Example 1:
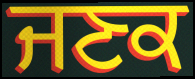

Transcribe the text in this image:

ਜਣਕ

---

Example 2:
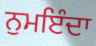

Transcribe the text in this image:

ਨੁਮਇੰਦਾ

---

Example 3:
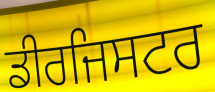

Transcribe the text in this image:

ਡੀਰਜਿਸਟਰ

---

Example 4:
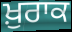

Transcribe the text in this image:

ਖ਼ੁਰਾਕ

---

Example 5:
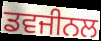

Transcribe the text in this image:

ਡਵਜੀਨਲ